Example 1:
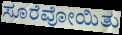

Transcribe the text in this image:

ಸೂರೆವೋಯಿತು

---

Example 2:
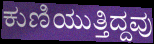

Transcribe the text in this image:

ಕುಣಿಯುತ್ತಿದ್ದವು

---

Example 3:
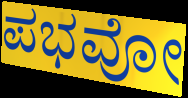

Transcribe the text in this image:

ಪಭವೋ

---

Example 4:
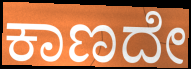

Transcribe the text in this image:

ಕಾಣದೇ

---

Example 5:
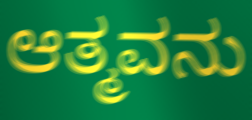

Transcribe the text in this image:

ಆತ್ಮವನು